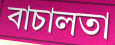
বাচালতা